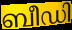
ബീഡി